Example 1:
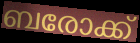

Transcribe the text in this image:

ബരോക്ക്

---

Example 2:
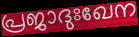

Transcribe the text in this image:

പ്രജാദുഃഖേന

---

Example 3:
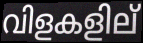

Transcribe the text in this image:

വിളകളില്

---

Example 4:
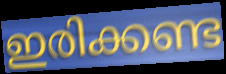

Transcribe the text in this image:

ഇരിക്കണ്ട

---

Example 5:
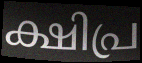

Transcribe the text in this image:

ക്ഷിപ്ര